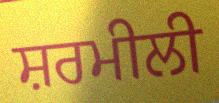
ਸ਼ਰਮੀਲੀ